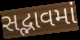
સદ્ભાવમાં